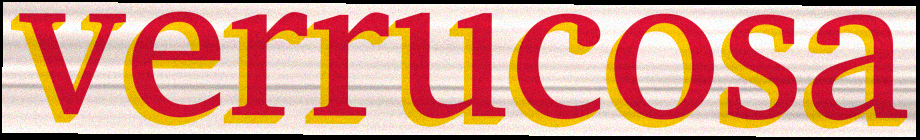
verrucosa